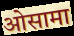
ओसामा